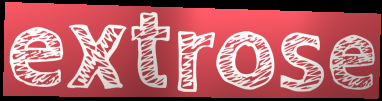
extrose